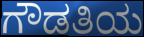
ಗೌಡತಿಯ